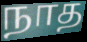
நாத